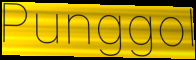
Punggol